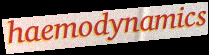
haemodynamics